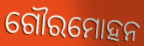
ଗୌରମୋହନ